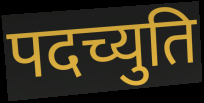
पदच्युति